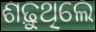
ଶଢ଼ୁଥିଲେ